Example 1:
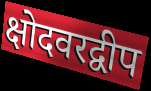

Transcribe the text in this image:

क्षोदवरद्वीप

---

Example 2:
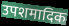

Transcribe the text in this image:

उपशमादिक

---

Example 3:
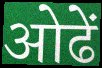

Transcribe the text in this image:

ओढें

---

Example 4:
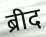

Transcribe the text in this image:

ब्रीद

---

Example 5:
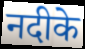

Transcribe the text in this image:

नदीके